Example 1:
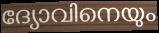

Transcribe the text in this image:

ദ്യോവിനെയും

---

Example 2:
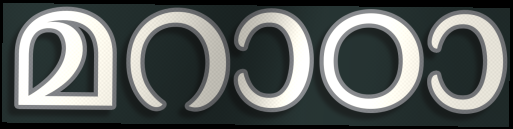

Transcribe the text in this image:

മറാഠാ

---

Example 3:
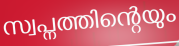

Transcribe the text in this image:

സ്വപ്നത്തിന്റെയും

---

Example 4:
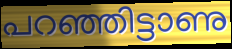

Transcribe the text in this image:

പറഞ്ഞിട്ടാണു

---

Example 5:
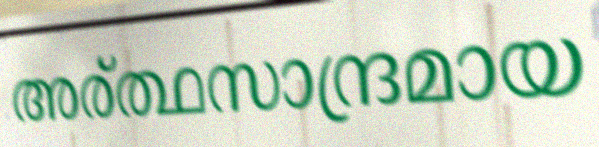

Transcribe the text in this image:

അര്ത്ഥസാന്ദ്രമായ